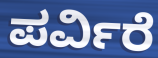
ಪರ್ವಿರೆ